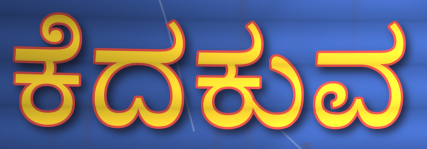
ಕೆದಕುವ